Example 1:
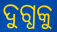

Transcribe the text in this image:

ଦୁଗ୍ଧକୁ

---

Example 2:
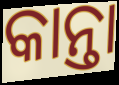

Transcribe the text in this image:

କାନ୍ତା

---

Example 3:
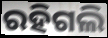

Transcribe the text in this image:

ରହିଗଲି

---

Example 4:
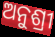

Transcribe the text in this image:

ଅନୁଶ୍ରୀ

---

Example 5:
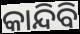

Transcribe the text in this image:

କାନ୍ଦିବି